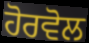
ਹੋਰਵੋਲ